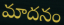
మాదనం